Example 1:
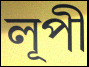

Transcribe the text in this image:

লূপী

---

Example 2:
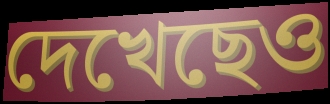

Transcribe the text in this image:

দেখেছেও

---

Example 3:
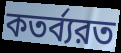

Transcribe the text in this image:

কতর্ব্যরত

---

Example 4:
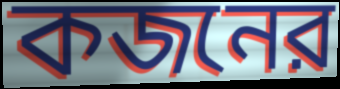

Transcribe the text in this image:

কজনের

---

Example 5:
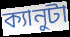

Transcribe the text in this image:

ক্যানুটা